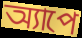
অ্যাপে